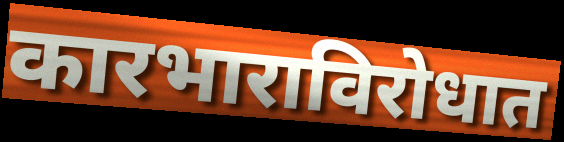
कारभाराविरोधात